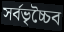
সর্বভৃচ্চৈব